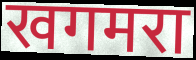
खगमरा